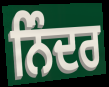
ਨਿੰਦਰ